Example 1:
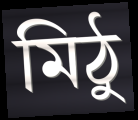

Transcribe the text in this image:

মিঠু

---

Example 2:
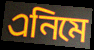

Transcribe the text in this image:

এনিমে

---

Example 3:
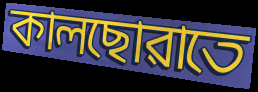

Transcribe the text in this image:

কালছোৱাতে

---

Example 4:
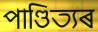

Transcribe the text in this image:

পাণ্ডিত্যৰ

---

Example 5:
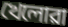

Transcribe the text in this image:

খেলোৱা